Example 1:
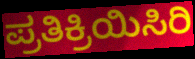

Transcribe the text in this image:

ಪ್ರತಿಕ್ರಿಯಿಸಿರಿ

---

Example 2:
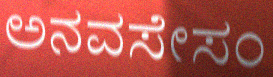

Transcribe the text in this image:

ಅನವಸೇಸಂ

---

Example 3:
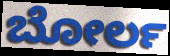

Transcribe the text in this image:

ಬೋರ್ಲ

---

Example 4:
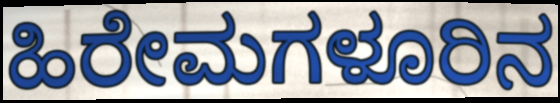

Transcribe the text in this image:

ಹಿರೇಮಗಳೂರಿನ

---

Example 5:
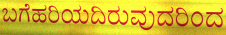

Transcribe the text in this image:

ಬಗೆಹರಿಯದಿರುವುದರಿಂದ